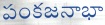
పంకజనాభా